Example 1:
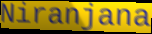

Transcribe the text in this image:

Niranjana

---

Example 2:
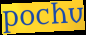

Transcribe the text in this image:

pochu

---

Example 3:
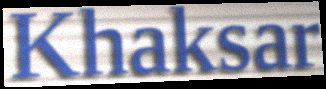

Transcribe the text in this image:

Khaksar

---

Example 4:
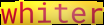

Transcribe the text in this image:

whiter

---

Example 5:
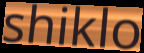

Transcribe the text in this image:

shiklo